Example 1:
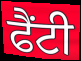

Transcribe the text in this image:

ਫੈਂਟੀ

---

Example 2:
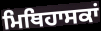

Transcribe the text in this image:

ਮਿਥਿਹਾਸਕਾਂ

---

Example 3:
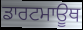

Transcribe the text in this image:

ਡਾਰਟਮਾਊਥ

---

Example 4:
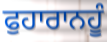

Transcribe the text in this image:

ਫੁਹਾਰਾਨਹੂੰ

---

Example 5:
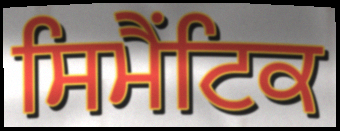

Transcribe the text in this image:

ਸਿਮੈਂਟਿਕ